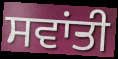
ਸਵਾਂਤੀ